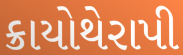
ક્રાયોથેરાપી